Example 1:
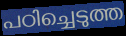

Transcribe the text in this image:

പഠിച്ചെടുത്ത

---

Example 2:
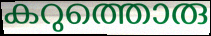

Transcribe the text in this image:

കറുത്തൊരു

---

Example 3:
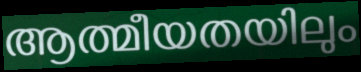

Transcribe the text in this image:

ആത്മീയതയിലും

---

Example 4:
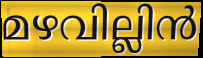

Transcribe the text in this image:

മഴവില്ലിൻ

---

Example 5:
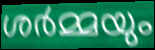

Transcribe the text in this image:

ശർമ്മയും